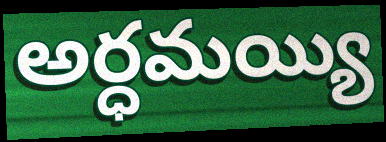
అర్ధమయ్యి